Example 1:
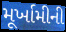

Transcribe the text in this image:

મૂર્ખામીની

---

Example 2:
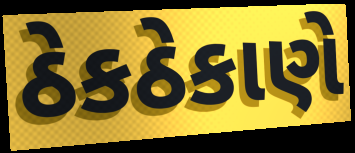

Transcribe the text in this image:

ઠેકઠેકાણે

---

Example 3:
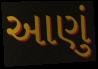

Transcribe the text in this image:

આણું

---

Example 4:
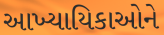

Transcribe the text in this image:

આખ્યાયિકાઓને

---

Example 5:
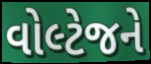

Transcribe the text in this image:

વોલ્ટેજને